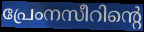
പ്രേംനസീറിന്റെ